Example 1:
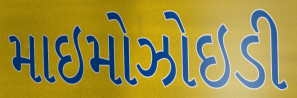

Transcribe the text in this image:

માઇમોઝોઇડી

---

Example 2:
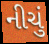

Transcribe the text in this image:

નીચું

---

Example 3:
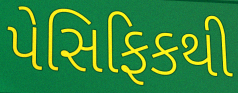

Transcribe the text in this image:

પેસિફિકથી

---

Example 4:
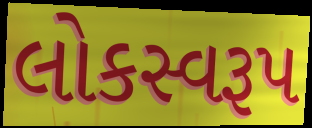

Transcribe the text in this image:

લોકસ્વરૂપ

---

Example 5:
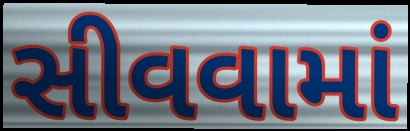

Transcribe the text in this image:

સીવવામાં